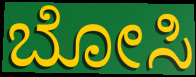
ಬೋಸಿ